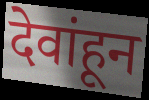
देवांहून